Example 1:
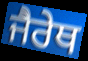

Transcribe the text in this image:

ਜੈਰੇਥ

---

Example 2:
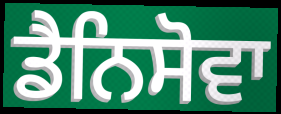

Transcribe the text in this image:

ਡੈਨਿਸੋਵਾ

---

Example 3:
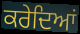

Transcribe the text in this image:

ਕਰੇਦਿਆਂ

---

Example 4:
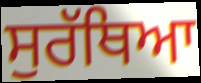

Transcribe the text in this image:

ਸੁਰੱਥਿਆ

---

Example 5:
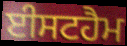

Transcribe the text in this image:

ਈਸਟਹੈਮ